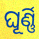
ଘୂର୍ଣ୍ଣି